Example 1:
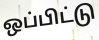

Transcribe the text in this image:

ஒப்பிட்டு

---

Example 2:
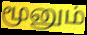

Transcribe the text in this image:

மூனும்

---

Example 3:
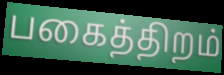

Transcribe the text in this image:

பகைத்திறம்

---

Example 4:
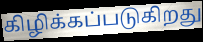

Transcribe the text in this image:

கிழிக்கப்படுகிறது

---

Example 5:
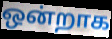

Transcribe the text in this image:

ஒன்றாக